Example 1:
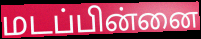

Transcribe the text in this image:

மடப்பின்னை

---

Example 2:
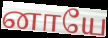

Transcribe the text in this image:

னாயே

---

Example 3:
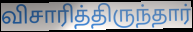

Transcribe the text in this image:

விசாரித்திருந்தார்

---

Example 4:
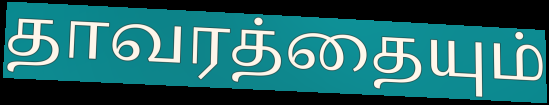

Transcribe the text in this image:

தாவரத்தையும்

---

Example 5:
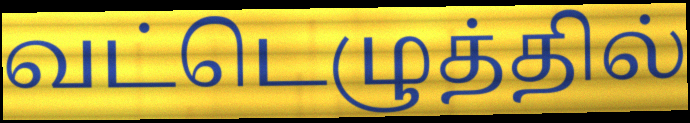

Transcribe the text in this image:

வட்டெழுத்தில்